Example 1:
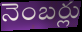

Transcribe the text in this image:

నెంబర్లు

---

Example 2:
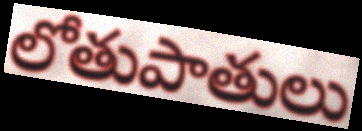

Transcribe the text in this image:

లోతుపాతులు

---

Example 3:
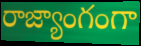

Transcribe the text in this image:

రాజ్యాంగంగా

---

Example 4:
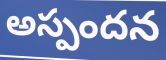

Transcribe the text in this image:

అస్పందన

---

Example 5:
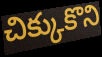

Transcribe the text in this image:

చిక్కుకొని